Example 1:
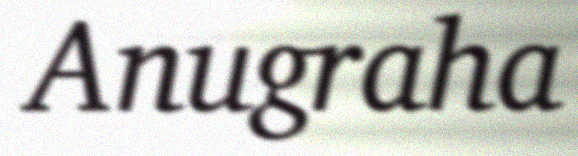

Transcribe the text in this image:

Anugraha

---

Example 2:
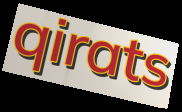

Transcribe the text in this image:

qirats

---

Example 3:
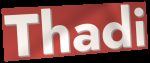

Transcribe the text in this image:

Thadi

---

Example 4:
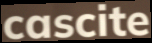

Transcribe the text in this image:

cascite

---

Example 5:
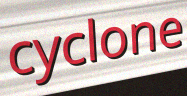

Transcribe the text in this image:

cyclone